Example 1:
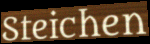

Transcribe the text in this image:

Steichen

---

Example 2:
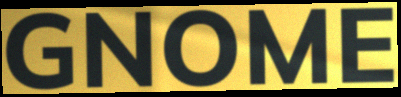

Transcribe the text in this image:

GNOME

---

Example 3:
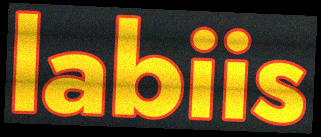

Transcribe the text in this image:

labiis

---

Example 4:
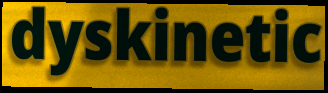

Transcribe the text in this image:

dyskinetic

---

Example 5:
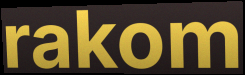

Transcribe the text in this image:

rakom